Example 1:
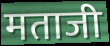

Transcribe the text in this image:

मताजी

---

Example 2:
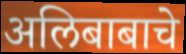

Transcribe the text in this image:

अलिबाबाचे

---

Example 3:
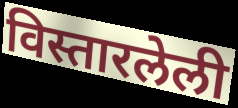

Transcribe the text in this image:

विस्तारलेली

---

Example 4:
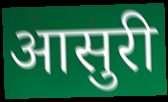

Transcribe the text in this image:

आसुरी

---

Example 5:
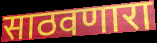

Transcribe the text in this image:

साठवणारा